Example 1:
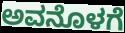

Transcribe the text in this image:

ಅವನೊಳಗೆ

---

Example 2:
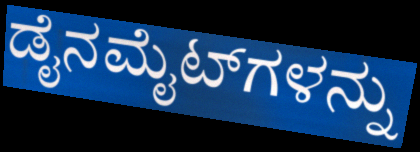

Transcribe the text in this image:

ಡೈನಮೈಟ್‌ಗಳನ್ನು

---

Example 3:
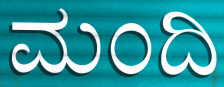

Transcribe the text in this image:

ಮಂದಿ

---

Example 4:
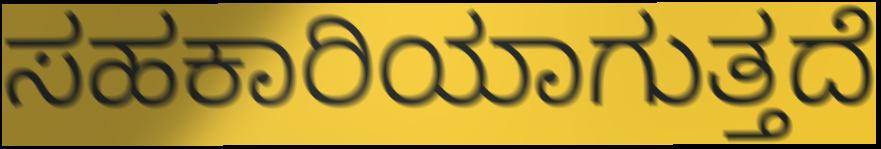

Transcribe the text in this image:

ಸಹಕಾರಿಯಾಗುತ್ತದೆ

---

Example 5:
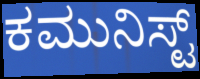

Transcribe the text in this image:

ಕಮುನಿಸ್ಟ್